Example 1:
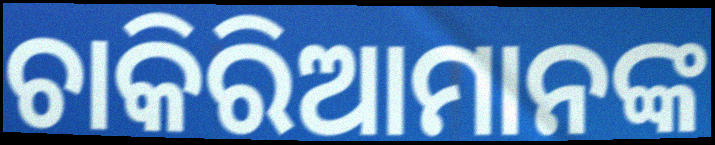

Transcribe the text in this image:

ଚାକିରିଆମାନଙ୍କ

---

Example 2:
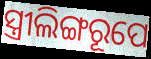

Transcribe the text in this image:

ସ୍ତ୍ରୀଲିଙ୍ଗରୂପେ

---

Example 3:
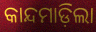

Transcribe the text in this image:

କାନ୍ଦମାଡ଼ିଲା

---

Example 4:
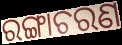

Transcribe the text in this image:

ରଙ୍ଗାଚରଣ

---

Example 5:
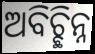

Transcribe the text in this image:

ଅବିଚ୍ଛିନ୍ନ